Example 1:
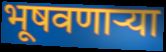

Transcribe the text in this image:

भूषवणाऱ्या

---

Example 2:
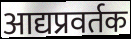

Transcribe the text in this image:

आद्यप्रवर्तक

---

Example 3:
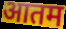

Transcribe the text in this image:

आतम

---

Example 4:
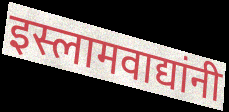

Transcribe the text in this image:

इस्लामवाद्यांनी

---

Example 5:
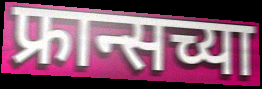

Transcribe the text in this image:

फ्रान्सच्या